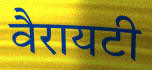
वैरायटी